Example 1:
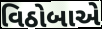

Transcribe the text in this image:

વિઠોબાએ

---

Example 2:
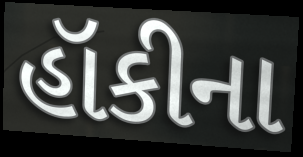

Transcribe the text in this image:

હૉકીના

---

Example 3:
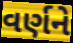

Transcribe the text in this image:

વર્ણને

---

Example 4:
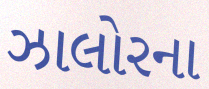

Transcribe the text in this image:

ઝાલોરના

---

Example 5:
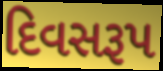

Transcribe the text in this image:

દિવસરૂપ